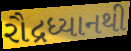
રૌદ્રધ્યાનથી